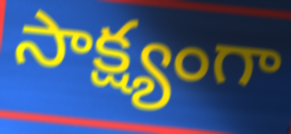
సాక్ష్యంగా